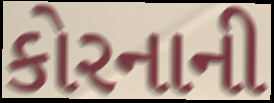
કોરનાની